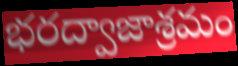
భరద్వాజాశ్రమం